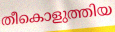
തീകൊളുത്തിയ